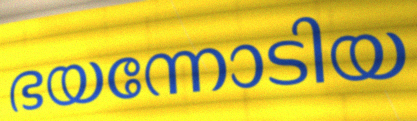
ഭയന്നോടിയ